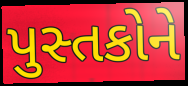
પુસ્તકોને